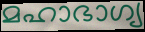
മഹാഭാഗ്യ